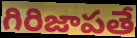
గిరిజాపతే